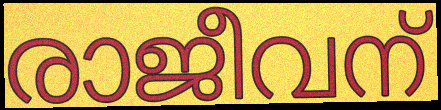
രാജീവന്